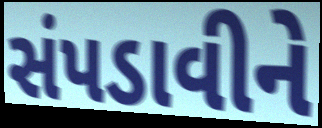
સંપડાવીને